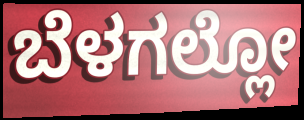
ಬೆಳಗಲ್ಲೋ